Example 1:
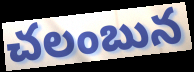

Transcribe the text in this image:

చలంబున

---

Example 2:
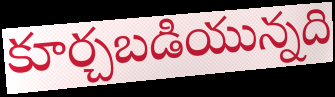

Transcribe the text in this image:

కూర్చబడియున్నది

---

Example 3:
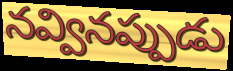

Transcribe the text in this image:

నవ్వినప్పుడు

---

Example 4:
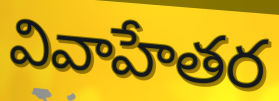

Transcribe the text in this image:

వివాహేతర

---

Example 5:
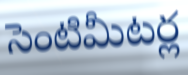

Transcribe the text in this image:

సెంటిమీటర్ల